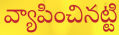
వ్యాపించినట్టి